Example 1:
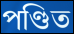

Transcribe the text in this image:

পণ্ডিত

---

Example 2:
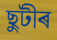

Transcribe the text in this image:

ছুটীৰ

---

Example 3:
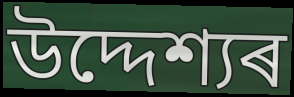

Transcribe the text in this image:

উদ্দেশ্যৰ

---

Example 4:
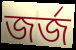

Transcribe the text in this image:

জৰ্জ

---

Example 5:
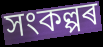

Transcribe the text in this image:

সংকল্পৰ